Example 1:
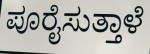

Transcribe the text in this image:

ಪೂರೈಸುತ್ತಾಳೆ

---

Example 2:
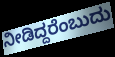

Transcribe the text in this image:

ನೀಡಿದ್ದರೆಂಬುದು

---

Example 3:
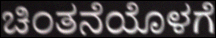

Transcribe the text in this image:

ಚಿಂತನೆಯೊಳಗೆ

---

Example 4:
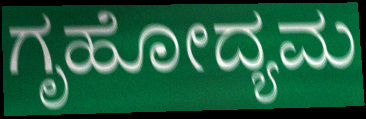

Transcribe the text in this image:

ಗೃಹೋದ್ಯಮ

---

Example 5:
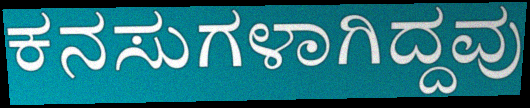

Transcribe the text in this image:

ಕನಸುಗಳಾಗಿದ್ದವು